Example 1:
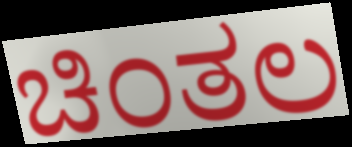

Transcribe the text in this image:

ಚಿಂತಲ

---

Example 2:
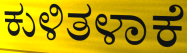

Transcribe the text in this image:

ಕುಳಿತಳಾಕೆ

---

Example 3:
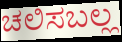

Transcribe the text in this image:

ಚಲಿಸಬಲ್ಲ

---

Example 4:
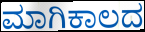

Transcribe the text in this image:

ಮಾಗಿಕಾಲದ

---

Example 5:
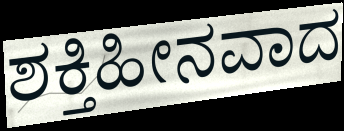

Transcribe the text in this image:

ಶಕ್ತಿಹೀನವಾದ